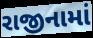
રાજીનામાં